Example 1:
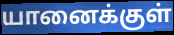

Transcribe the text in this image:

யானைக்குள்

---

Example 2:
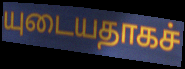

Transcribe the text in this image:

யுடையதாகச்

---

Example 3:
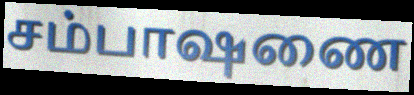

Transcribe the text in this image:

சம்பாஷணை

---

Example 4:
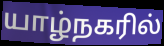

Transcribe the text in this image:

யாழ்நகரில்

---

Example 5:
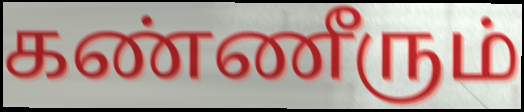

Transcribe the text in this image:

கண்ணீரும்